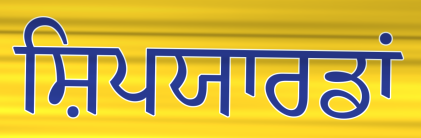
ਸ਼ਿਪਯਾਰਡਾਂ